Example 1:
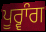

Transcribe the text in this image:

ਪੂਰ੍ਵਾੰਗ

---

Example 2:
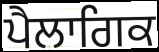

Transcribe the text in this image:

ਪੈਲਾਗਿਕ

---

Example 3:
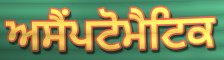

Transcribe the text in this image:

ਅਸੈਂਪਟੋਮੈਟਿਕ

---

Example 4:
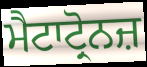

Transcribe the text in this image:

ਮੈਟਾਟ੍ਰੋਨਜ਼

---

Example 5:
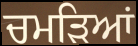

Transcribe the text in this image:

ਚਮੜਿਆਂ